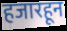
हजारहून